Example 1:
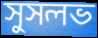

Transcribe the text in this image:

সুসলভ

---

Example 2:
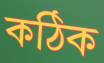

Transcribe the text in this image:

কঠিক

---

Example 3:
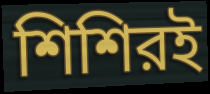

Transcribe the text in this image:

শিশিরই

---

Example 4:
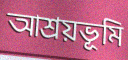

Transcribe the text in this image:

আশ্রয়ভূমি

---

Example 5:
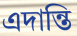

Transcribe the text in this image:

এদান্তি